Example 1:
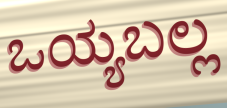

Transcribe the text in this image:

ಒಯ್ಯಬಲ್ಲ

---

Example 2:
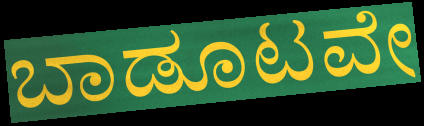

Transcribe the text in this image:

ಬಾಡೂಟವೇ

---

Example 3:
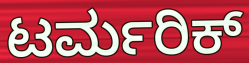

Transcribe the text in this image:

ಟರ್ಮರಿಕ್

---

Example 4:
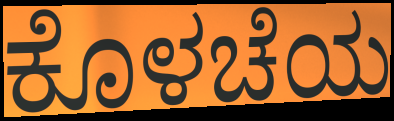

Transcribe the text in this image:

ಕೊಳಚೆಯ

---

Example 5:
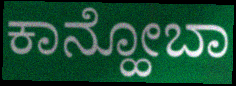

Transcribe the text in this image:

ಕಾನ್ಹೋಬಾ